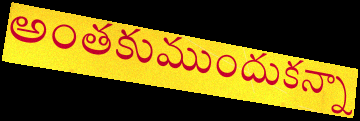
అంతకుముందుకన్నా